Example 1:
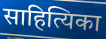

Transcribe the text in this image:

साहित्यिका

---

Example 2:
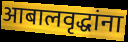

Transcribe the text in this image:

आबालवृद्धांना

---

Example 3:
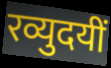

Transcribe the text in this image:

रव्युदयीं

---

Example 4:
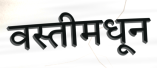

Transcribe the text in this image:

वस्तीमधून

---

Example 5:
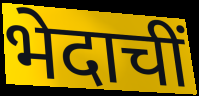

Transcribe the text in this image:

भेदाचीं